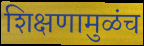
शिक्षणामुळंच